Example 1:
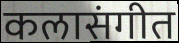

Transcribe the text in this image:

कलासंगीत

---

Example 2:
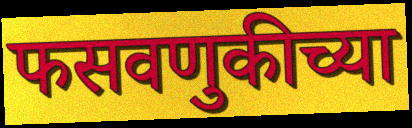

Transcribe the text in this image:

फसवणुकीच्या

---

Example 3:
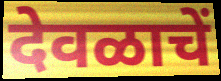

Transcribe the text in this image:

देवळाचें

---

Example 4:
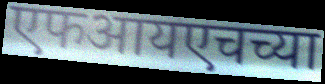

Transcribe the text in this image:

एफआयएचच्या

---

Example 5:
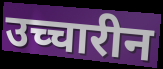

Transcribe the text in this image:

उच्चारीन